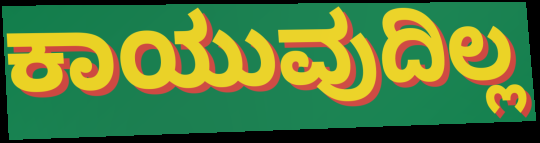
ಕಾಯುವುದಿಲ್ಲ